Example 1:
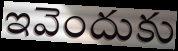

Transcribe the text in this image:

ఇవెందుకు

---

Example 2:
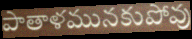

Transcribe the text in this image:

పాతాళమునకుపోవు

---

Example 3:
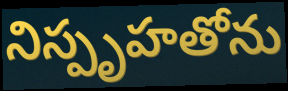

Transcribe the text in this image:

నిస్పృహతోను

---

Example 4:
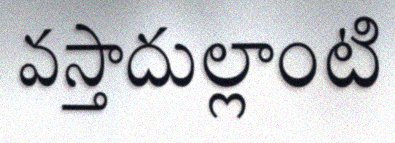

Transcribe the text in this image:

వస్తాదుల్లాంటి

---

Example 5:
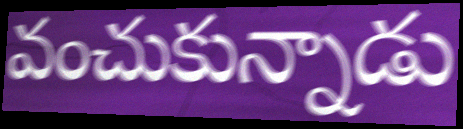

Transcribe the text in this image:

వంచుకున్నాడు